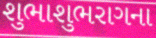
શુભાશુભરાગના